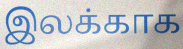
இலக்காக